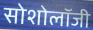
सोशोलॉजी